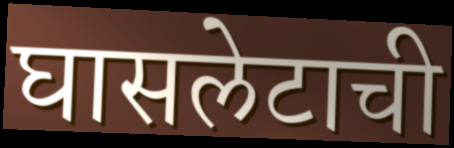
घासलेटाची